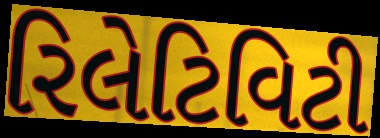
રિલેટિવિટી